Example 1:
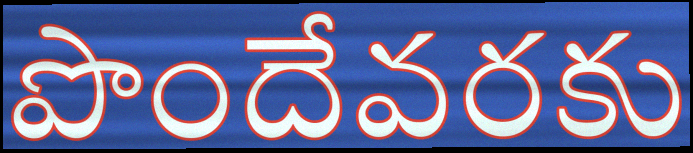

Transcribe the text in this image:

పొందేవరకు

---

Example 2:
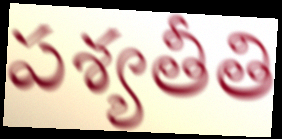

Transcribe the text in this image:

పశ్యతీతి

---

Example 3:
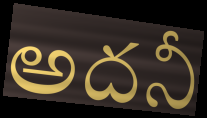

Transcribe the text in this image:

అదనీ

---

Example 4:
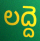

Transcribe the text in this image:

లద్దె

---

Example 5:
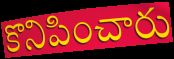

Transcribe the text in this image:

కొనిపించారు